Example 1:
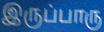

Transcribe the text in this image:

இருப்பாரு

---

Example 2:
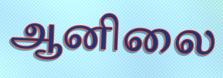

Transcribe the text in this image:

ஆனிலை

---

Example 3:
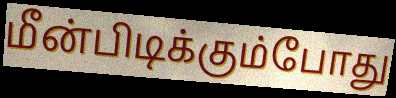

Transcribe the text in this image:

மீன்பிடிக்கும்போது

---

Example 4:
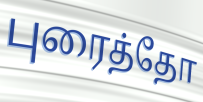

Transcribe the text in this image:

புரைத்தோ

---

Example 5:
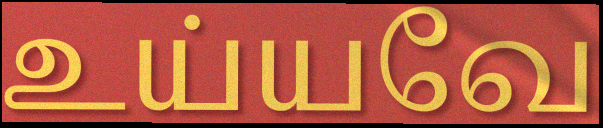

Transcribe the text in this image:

உய்யவே